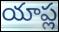
యాప్ల